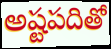
అష్టపదితో